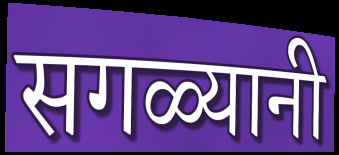
सगळ्यानी